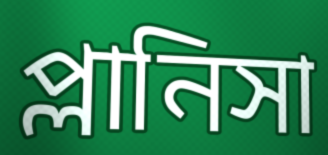
প্লানিসা